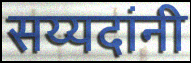
सय्यदांनी